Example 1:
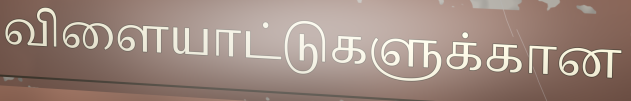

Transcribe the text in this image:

விளையாட்டுகளுக்கான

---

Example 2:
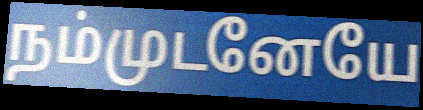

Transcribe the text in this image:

நம்முடனேயே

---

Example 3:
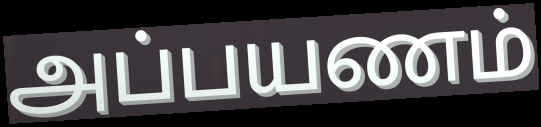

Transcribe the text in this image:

அப்பயணம்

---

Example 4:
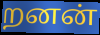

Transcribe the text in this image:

றனன்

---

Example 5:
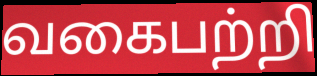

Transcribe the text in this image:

வகைபற்றி